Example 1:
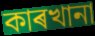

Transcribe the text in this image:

কাৰখানা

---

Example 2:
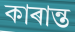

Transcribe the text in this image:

কাৰান্ত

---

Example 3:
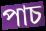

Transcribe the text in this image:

পাচ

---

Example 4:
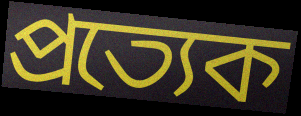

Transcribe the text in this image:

প্ৰত্যেক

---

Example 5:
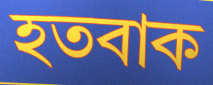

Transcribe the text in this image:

হতবাক